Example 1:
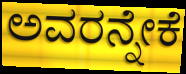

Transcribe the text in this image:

ಅವರನ್ನೇಕೆ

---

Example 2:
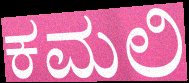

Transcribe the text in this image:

ಕಮಲಿ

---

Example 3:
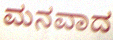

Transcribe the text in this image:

ಮನವಾದ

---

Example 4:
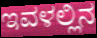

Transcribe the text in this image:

ಇವಳಲ್ಲಿನ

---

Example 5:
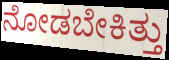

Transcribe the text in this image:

ನೋಡಬೇಕಿತ್ತು